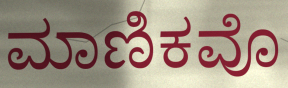
ಮಾಣಿಕವೊ